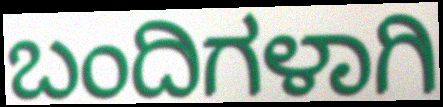
ಬಂದಿಗಳಾಗಿ